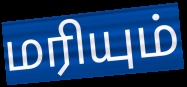
மரியும்